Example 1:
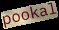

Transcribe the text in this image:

pookal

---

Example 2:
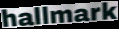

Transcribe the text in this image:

hallmark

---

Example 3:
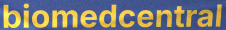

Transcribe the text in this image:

biomedcentral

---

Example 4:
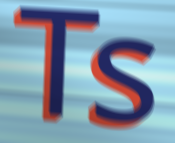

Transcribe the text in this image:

Ts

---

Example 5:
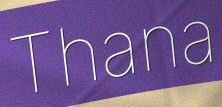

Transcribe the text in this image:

Thana